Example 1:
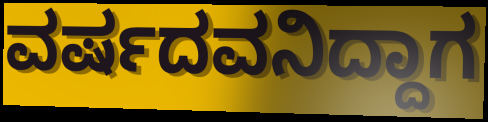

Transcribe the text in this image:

ವರ್ಷದವನಿದ್ದಾಗ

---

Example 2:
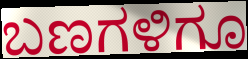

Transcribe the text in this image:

ಬಣಗಳಿಗೂ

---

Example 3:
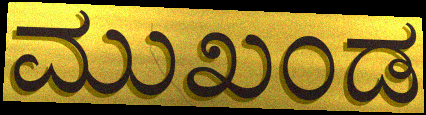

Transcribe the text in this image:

ಮುಖಂಡ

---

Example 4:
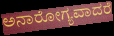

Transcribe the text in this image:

ಅನಾರೋಗ್ಯವಾದರೆ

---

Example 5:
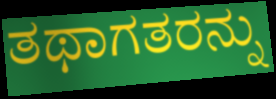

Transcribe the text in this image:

ತಥಾಗತರನ್ನು